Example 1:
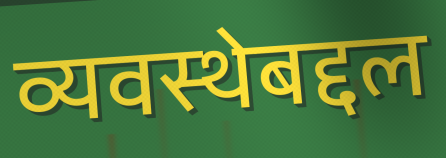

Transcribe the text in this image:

व्यवस्थेबद्दल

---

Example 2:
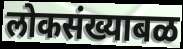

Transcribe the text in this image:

लोकसंख्याबळ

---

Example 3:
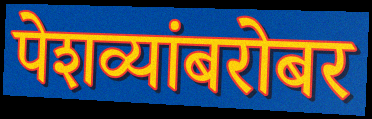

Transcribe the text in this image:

पेशव्यांबरोबर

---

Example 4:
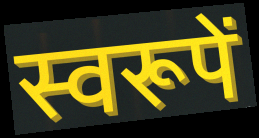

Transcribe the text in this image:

स्वरूपें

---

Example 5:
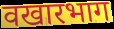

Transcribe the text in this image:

वखारभाग